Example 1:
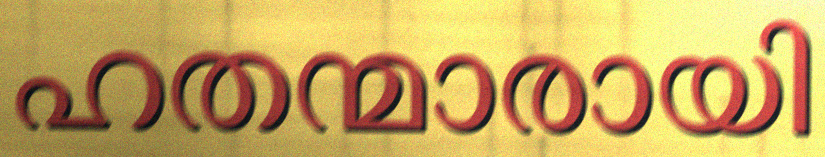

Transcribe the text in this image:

ഹതന്മാരായി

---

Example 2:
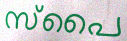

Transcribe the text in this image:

സ്പൈ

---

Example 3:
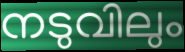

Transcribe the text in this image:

നടുവിലും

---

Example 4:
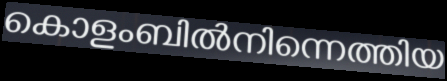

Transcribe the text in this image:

കൊളംബിൽനിന്നെത്തിയ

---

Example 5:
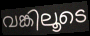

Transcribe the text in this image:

വങ്കിലൂടെ